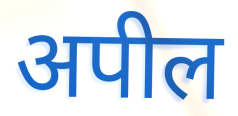
अपील